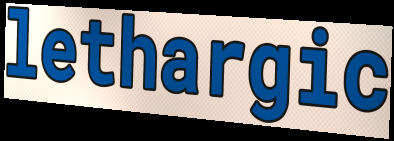
lethargic